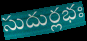
సుదుర్లభః